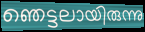
ഞെട്ടലായിരുന്നു